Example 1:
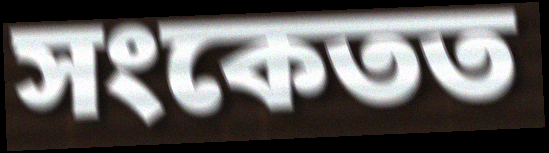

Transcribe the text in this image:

সংকেতত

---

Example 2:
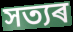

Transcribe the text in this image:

সত্যৰ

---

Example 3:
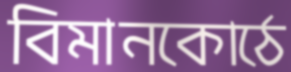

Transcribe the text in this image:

বিমানকোঠে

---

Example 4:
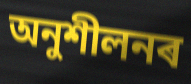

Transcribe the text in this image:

অনুশীলনৰ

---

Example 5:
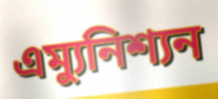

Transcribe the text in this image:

এম্যুনিশ্যন